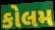
કોલમ